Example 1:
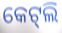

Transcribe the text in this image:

କେଟ୍‍ଲି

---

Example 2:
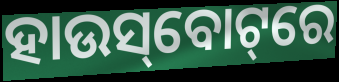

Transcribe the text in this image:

ହାଉସ୍‌ବୋଟ୍‌ରେ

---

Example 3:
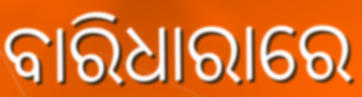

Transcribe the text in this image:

ବାରିଧାରାରେ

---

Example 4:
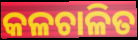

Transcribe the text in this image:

କଳଚାଳିତ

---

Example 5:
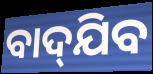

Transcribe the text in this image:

ବାଦ୍‌ଯିବ